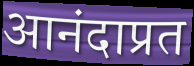
आनंदाप्रत